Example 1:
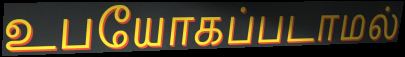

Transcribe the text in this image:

உபயோகப்படாமல்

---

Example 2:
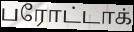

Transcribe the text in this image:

பரோட்டாக்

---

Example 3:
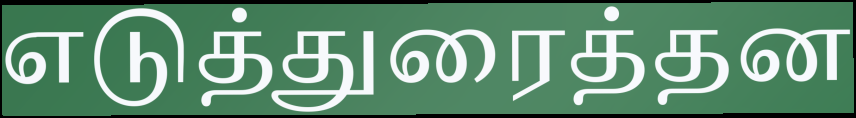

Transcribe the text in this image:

எடுத்துரைத்தன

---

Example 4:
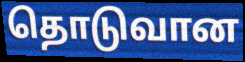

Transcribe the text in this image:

தொடுவான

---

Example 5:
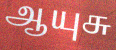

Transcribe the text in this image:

ஆயுசு